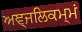
ਅਞ੍ਜਲਿਕਮ੍ਮਂ